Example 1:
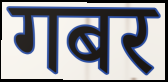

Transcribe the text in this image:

गबर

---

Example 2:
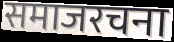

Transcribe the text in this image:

समाजरचना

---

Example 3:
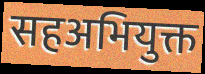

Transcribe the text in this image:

सहअभियुक्त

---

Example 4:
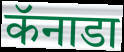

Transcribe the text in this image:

कॅनाडा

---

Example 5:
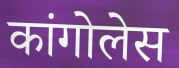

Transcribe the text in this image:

कांगोलेस